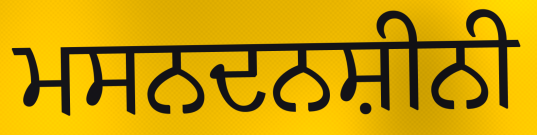
ਮਸਨਦਨਸ਼ੀਨੀ